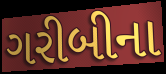
ગરીબીના